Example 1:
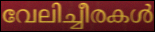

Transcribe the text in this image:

വേലിച്ചീരകൾ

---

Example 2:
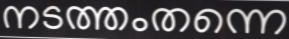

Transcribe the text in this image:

നടത്തംതന്നെ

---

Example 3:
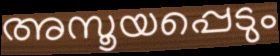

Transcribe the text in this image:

അസൂയപ്പെടും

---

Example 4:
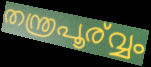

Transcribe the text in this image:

തന്ത്രപൂര്വ്വം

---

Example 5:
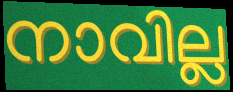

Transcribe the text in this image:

നാവില്ല